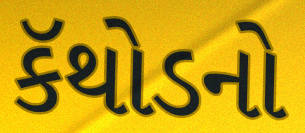
કૅથોડનો